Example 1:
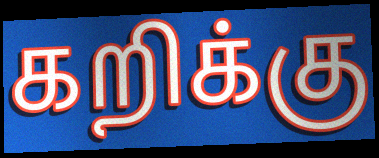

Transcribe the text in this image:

கறிக்கு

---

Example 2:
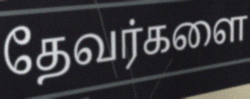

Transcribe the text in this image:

தேவர்களை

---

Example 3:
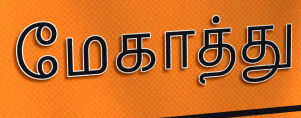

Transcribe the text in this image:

மேகாத்து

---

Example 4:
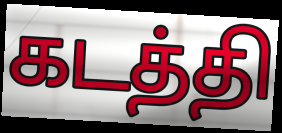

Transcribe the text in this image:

கடத்தி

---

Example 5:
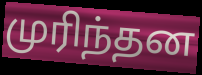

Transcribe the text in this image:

முரிந்தன